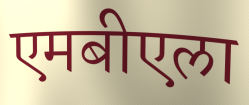
एमबीएला